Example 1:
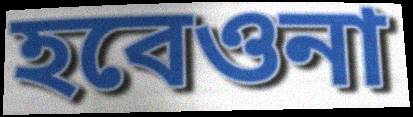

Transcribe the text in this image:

হবেওনা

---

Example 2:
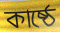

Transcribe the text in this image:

কাষ্ঠে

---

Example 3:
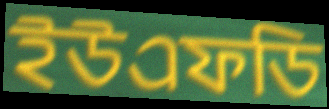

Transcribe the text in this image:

ইউএফডি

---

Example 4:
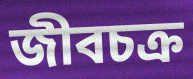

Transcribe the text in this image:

জীবচক্র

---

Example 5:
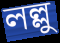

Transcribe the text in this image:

লল্লু